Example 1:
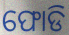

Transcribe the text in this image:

ଫୋଡି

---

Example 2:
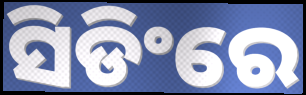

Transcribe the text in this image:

ସିଡିଂରେ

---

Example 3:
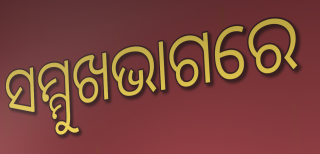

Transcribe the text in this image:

ସମ୍ମୁଖଭାଗରେ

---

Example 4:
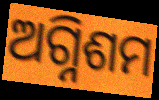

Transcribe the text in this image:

ଅଗ୍ନିଶମ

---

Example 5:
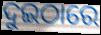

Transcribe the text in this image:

ଦୁଇଠାରେ